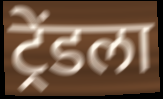
ट्रेंडला